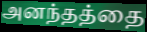
அனந்தத்தை